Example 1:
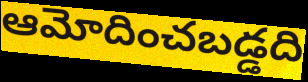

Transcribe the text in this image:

ఆమోదించబడ్డది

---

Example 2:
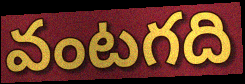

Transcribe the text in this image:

వంటగది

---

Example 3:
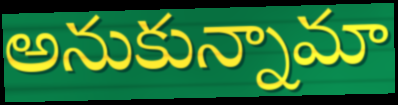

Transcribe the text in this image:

అనుకున్నామా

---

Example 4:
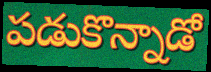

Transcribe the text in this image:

పడుకొన్నాడో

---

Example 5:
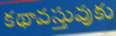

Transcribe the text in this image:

కథావస్తువుకు